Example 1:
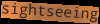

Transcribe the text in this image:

sightseeing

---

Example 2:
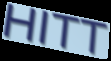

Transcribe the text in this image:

HITT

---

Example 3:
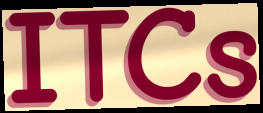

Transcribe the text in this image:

ITCs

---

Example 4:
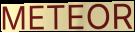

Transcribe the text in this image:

METEOR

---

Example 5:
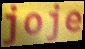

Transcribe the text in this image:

joje